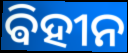
ଵିହୀନ